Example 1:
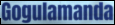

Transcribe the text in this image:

Gogulamanda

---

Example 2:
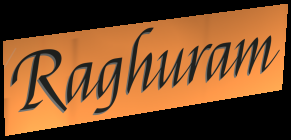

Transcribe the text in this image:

Raghuram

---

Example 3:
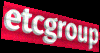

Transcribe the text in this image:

etcgroup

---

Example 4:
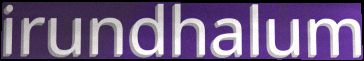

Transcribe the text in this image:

irundhalum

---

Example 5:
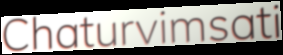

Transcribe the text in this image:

Chaturvimsati